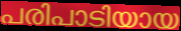
പരിപാടിയായ